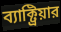
ব্যাক্ট্রিয়ার